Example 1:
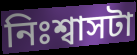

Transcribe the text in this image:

নিঃশ্বাসটা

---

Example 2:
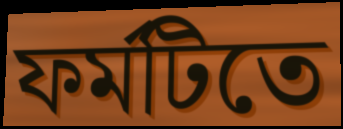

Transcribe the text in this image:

ফর্মটিতে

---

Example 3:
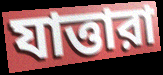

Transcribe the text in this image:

যাত্তারা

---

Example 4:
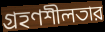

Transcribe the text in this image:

গ্রহণশীলতার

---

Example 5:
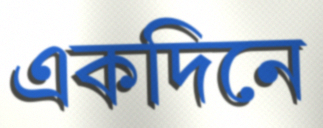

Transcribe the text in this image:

একদিনে